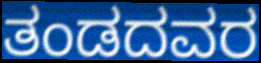
ತಂಡದವರ